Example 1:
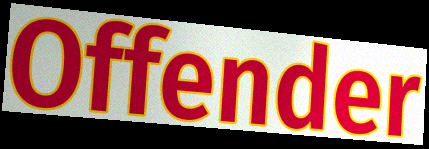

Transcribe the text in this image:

Offender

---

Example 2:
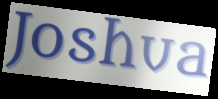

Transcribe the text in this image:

Joshua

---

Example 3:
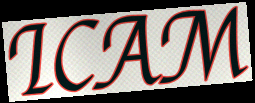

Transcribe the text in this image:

ICAM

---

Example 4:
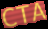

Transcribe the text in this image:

CTA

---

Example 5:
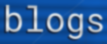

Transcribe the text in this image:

blogs